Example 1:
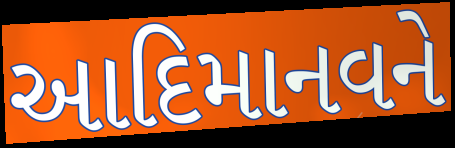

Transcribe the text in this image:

આદિમાનવને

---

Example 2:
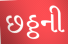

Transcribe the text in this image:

છઠ્ઠની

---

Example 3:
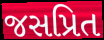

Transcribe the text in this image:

જસપ્રિત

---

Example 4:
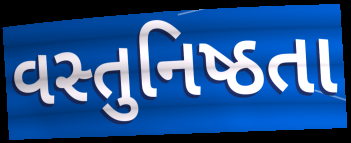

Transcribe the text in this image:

વસ્તુનિષ્ઠતા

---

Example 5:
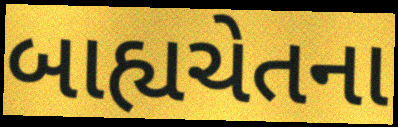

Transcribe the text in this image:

બાહ્યચેતના